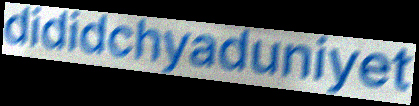
dididchyaduniyet